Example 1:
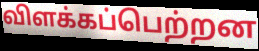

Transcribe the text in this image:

விளக்கப்பெற்றன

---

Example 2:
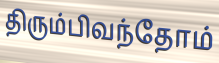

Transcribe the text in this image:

திரும்பிவந்தோம்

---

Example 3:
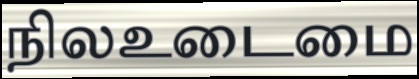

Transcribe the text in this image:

நிலஉடைமை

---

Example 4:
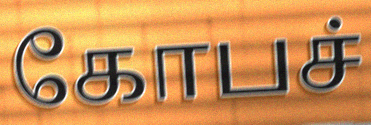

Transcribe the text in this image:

கோபச்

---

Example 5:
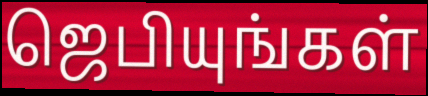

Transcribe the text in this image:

ஜெபியுங்கள்